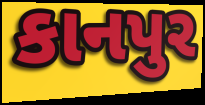
કાનપુર